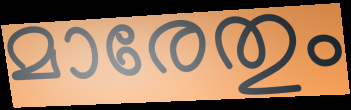
മാരേതും